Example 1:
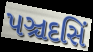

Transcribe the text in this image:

પઞ્ચદસિં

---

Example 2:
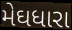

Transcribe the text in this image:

મેઘધારા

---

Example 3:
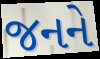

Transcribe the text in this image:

જનને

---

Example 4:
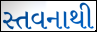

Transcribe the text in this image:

સ્તવનાથી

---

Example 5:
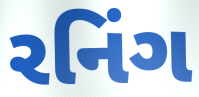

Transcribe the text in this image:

રનિંગ